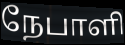
நேபாளி